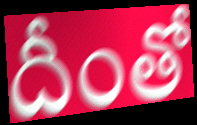
దీంతో